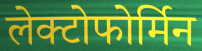
लेक्टोफोर्मिन